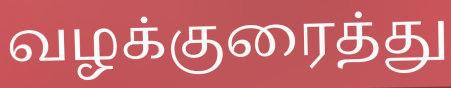
வழக்குரைத்து